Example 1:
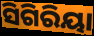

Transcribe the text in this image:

ସିଗିରିୟା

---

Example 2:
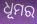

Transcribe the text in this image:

ଧୂମର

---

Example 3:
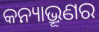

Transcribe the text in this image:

କନ୍ୟାଭ୍ରୂଣର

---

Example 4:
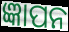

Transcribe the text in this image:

ଜ୍ଞାପନ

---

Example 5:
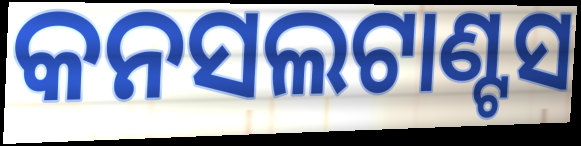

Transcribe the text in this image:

କନସଲଟାଣ୍ଟସ